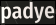
padye